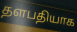
தளபதியாக